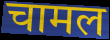
चामल